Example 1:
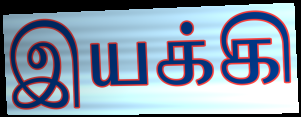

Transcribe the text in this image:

இயக்கி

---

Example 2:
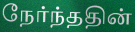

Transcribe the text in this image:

நேர்ந்ததின்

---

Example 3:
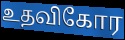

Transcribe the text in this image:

உதவிகோர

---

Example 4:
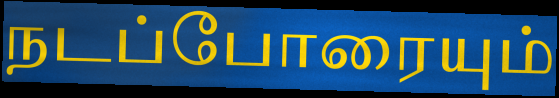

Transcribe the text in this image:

நடப்போரையும்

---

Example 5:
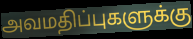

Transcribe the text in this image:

அவமதிப்புகளுக்கு